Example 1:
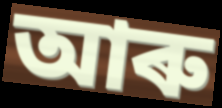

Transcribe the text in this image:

আৰু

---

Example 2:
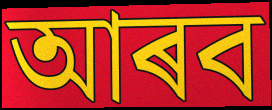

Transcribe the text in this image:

আৰব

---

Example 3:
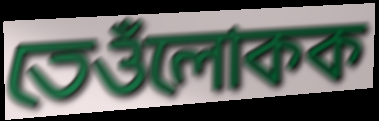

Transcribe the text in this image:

তেওঁলোকক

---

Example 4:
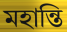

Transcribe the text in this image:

মহান্তি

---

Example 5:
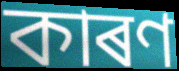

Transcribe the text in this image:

কাৰণ